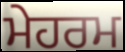
ਮੇਹਰਮ